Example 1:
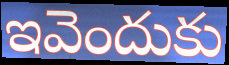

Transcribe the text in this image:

ఇవెందుకు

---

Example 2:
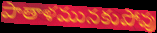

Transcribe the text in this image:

పాతాళమునకుపోవు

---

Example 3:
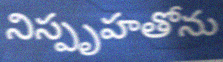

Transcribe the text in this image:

నిస్పృహతోను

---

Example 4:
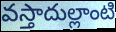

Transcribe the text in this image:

వస్తాదుల్లాంటి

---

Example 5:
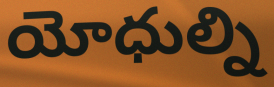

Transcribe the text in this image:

యోధుల్ని